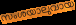
സംശയാലുവായ